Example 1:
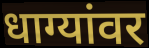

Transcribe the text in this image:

धाग्यांवर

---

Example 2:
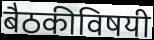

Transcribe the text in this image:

बैठकीविषयी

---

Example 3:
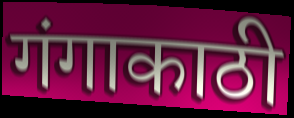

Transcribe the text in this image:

गंगाकाठी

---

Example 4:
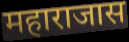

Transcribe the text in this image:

महाराजास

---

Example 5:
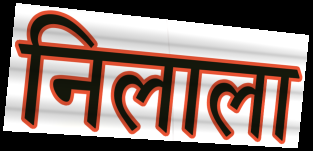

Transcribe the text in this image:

निलाला